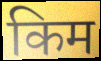
किम